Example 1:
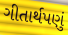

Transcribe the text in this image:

ગીતાર્થપણું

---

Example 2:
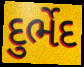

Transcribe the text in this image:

દુર્ભેદ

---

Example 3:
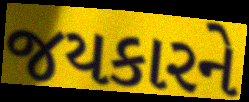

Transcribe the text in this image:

જયકારને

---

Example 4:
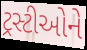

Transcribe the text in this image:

ટ્રસ્ટીઓને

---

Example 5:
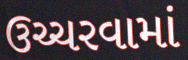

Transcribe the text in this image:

ઉચ્ચરવામાં